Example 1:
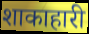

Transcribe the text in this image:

शाकाहारी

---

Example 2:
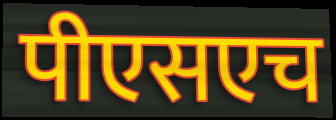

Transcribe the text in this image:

पीएसएच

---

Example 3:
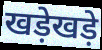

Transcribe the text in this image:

खड़ेखड़े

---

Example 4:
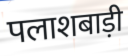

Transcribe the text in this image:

पलाशबाड़ी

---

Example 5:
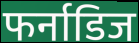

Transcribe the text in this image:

फर्नाडिज